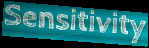
Sensitivity